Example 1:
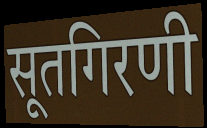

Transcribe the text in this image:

सूतगिरणी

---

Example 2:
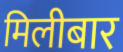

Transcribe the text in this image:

मिलीबार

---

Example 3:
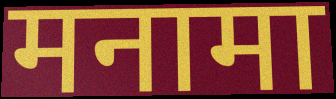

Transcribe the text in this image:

मनामा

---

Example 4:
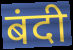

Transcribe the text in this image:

बंदी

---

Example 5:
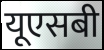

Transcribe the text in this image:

यूएसबी